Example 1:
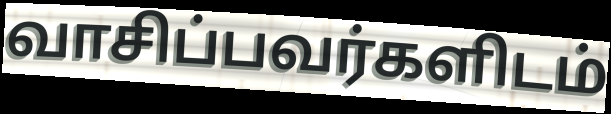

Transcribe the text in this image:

வாசிப்பவர்களிடம்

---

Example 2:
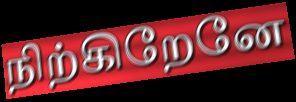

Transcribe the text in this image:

நிற்கிறேனே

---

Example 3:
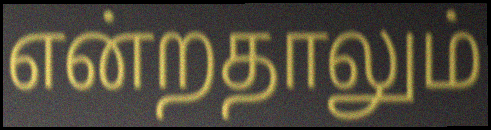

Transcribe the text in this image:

என்றதாலும்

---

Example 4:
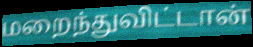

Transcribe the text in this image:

மறைந்துவிட்டான்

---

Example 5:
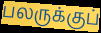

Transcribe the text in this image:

பலருக்குப்